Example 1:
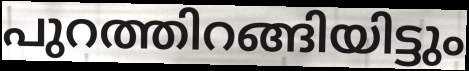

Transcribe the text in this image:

പുറത്തിറങ്ങിയിട്ടും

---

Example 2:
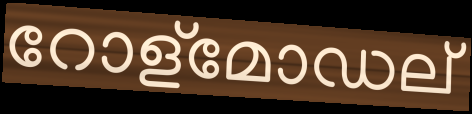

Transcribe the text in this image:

റോള്മോഡല്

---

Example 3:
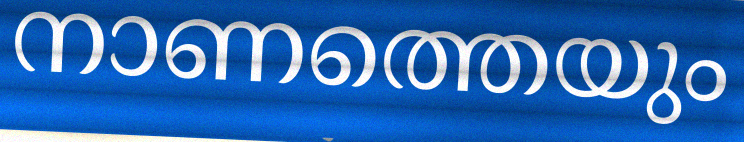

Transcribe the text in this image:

നാണത്തെയും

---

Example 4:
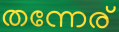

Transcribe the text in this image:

തന്നേര്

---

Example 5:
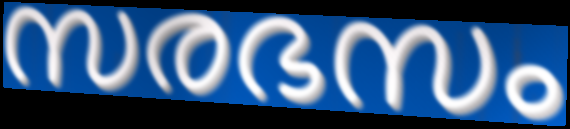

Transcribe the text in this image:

സരഭസം